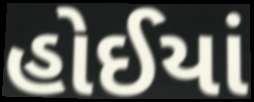
હોઈયાં